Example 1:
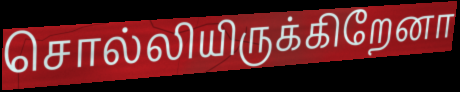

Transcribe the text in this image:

சொல்லியிருக்கிறேனா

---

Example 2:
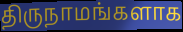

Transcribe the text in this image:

திருநாமங்களாக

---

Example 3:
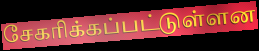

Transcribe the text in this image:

சேகரிக்கப்பட்டுள்ளன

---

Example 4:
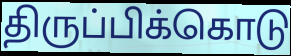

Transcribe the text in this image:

திருப்பிக்கொடு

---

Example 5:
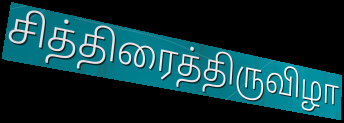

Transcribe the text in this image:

சித்திரைத்திருவிழா